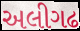
અલીગઢ